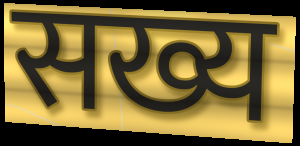
सख्य